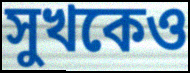
সুখকেও